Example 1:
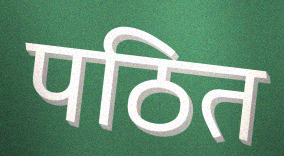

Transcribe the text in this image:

पठित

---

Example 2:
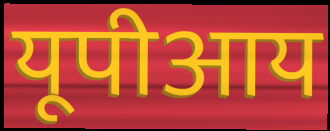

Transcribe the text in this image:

यूपीआय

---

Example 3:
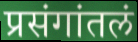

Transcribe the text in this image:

प्रसंगांतलं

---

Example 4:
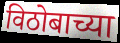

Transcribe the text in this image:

विठोबाच्या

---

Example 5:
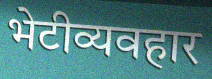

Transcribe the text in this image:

भेटीव्यवहार